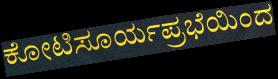
ಕೋಟಿಸೂರ್ಯಪ್ರಭೆಯಿಂದ